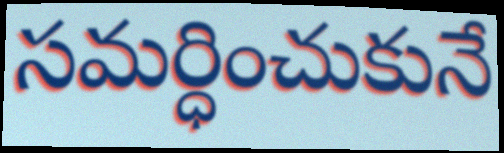
సమర్ధించుకునే